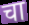
चा